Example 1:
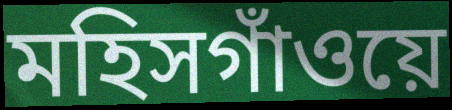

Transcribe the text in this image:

মহিসগাঁওয়ে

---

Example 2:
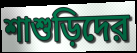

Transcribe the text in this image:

শাশুড়িদের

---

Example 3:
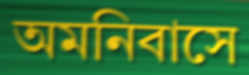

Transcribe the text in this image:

অমনিবাসে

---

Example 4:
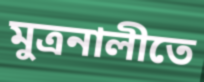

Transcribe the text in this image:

মুত্রনালীতে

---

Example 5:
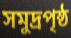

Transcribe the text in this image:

সমুদ্রপৃষ্ঠ